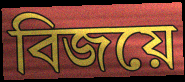
বিজয়ে